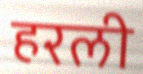
हरली